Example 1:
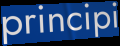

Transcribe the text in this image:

principi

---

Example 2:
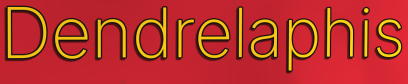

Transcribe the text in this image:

Dendrelaphis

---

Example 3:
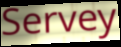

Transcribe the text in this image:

Servey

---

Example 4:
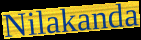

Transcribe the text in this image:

Nilakanda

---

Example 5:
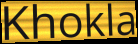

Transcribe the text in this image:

Khokla